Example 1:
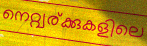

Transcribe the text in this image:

നെറ്റ്വര്ക്കുകളിലെ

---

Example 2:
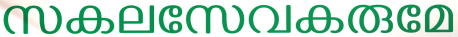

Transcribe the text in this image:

സകലസേവകരുമേ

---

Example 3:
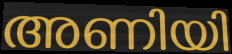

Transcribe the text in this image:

അണിയി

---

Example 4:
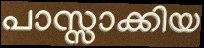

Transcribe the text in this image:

പാസ്സാക്കിയ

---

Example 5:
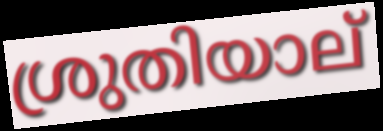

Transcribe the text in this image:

ശ്രുതിയാല്